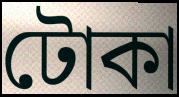
টোকা